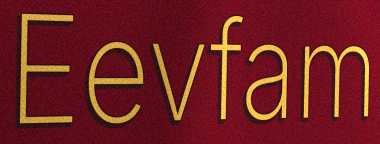
Eevfam